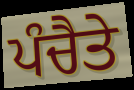
ਪੰਚੈਤੇ